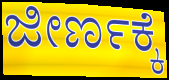
ಜೀರ್ಣಕ್ಕೆ